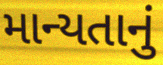
માન્યતાનું